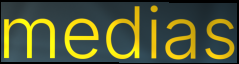
medias